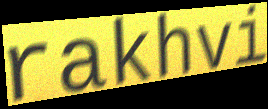
rakhvi